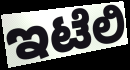
ಇಟೆಲಿ